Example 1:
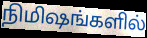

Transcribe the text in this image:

நிமிஷங்களில்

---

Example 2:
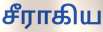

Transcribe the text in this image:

சீராகிய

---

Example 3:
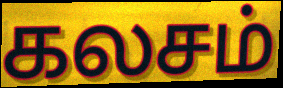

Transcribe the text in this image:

கலசம்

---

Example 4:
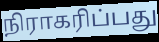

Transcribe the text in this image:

நிராகரிப்பது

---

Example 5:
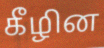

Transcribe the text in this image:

கீழின